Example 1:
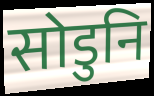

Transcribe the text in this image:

सोडुनि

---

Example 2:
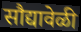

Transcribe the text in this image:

सौद्यावेळी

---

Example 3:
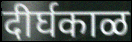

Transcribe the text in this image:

दीर्घकाळ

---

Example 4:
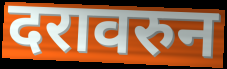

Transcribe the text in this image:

दरावरुन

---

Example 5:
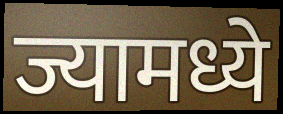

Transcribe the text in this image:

ज्यामध्ये